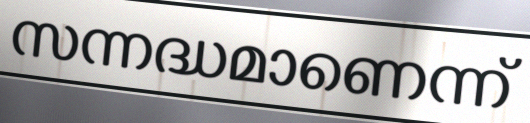
സന്നദ്ധമാണെന്ന്